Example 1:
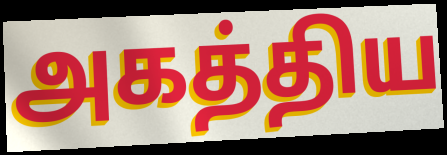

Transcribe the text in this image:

அகத்திய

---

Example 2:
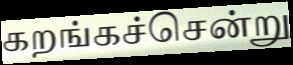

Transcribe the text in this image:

கறங்கச்சென்று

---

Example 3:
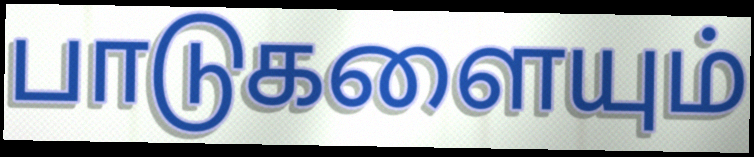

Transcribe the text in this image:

பாடுகளையும்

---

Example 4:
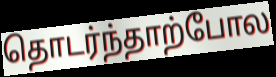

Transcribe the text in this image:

தொடர்ந்தாற்போல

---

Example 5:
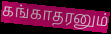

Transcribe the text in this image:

கங்காதரனும்